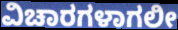
ವಿಚಾರಗಳಾಗಲೀ